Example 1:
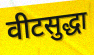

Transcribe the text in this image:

वीटसुद्धा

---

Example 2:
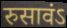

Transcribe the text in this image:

रुसावंऽ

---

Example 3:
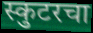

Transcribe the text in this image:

स्कुटरचा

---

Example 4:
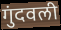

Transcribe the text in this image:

गुंदवली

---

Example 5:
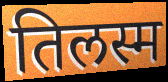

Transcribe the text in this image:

तिलस्म